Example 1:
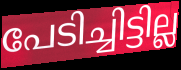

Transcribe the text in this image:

പേടിച്ചിട്ടില്ല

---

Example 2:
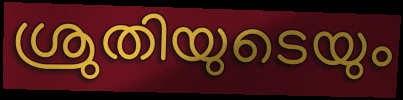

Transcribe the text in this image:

ശ്രുതിയുടെയും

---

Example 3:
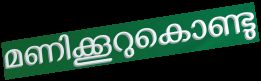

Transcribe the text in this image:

മണിക്കൂറുകൊണ്ടു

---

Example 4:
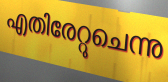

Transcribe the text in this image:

എതിരേറ്റുചെന്നു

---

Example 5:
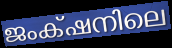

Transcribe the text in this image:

ജംക്‌ഷനിലെ